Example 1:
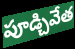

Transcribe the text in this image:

పూడ్చివేత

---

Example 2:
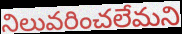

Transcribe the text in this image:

నిలువరించలేమని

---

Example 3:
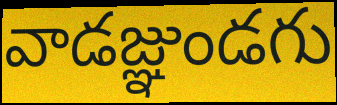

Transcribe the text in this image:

వాడజ్ఞుండగు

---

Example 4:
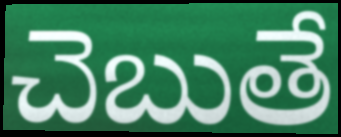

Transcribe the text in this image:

చెబుతే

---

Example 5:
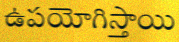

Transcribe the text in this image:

ఉపయోగిస్తాయి